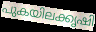
പുകയിലക്കൃഷി